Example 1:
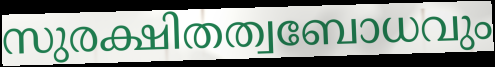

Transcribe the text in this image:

സുരക്ഷിതത്വബോധവും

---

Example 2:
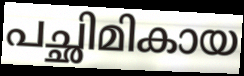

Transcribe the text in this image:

പച്ഛിമികായ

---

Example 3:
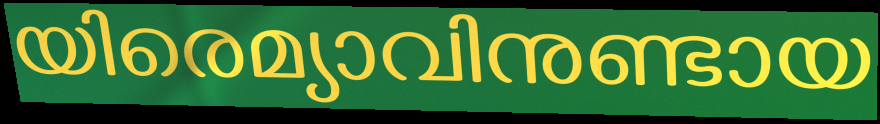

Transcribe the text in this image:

യിരെമ്യാവിനുണ്ടായ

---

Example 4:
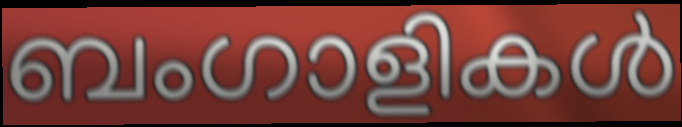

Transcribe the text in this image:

ബംഗാളികൾ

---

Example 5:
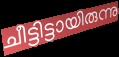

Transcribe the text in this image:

ചീട്ടിട്ടായിരുന്നു